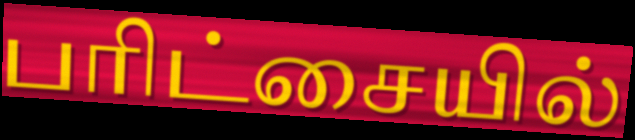
பரிட்சையில்